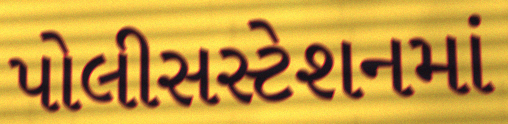
પોલીસસ્ટેશનમાં